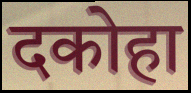
दकोहा